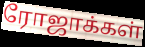
ரோஜாக்கள்